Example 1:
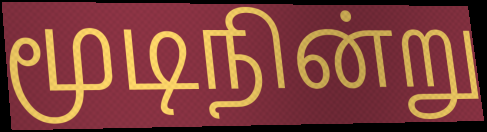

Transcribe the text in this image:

மூடிநின்று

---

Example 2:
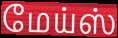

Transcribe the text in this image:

மேய்ஸ்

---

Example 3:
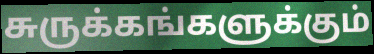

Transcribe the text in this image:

சுருக்கங்களுக்கும்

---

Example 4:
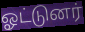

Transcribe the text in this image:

ஓட்டுனர்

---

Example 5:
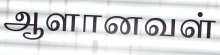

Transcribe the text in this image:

ஆளானவள்